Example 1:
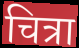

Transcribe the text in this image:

चित्रा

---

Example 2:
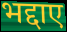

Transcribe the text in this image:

भद्दाए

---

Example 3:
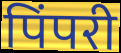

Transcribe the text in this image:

पिंपरी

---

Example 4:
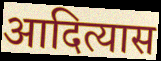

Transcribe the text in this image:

आदित्यास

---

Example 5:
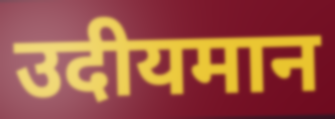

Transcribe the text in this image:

उदीयमान